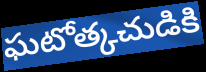
ఘటోత్కచుడికి